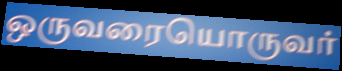
ஒருவரையொருவர்